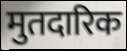
मुतदारिक